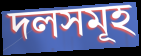
দলসমূহ